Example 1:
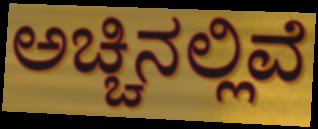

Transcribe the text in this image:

ಅಚ್ಚಿನಲ್ಲಿವೆ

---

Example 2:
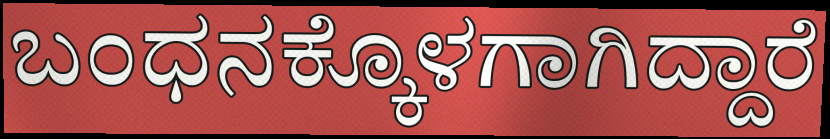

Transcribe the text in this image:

ಬಂಧನಕ್ಕೊಳಗಾಗಿದ್ದಾರೆ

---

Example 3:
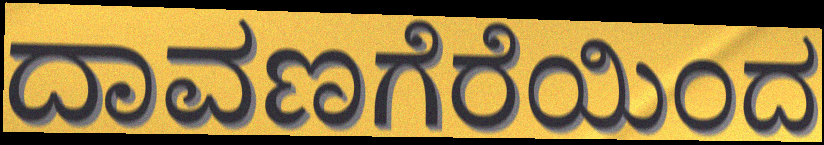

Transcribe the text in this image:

ದಾವಣಗೆರೆಯಿಂದ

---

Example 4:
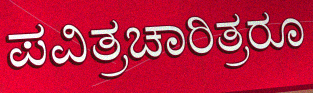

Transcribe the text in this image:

ಪವಿತ್ರಚಾರಿತ್ರರೂ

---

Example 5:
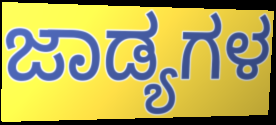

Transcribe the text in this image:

ಜಾಡ್ಯಗಳ